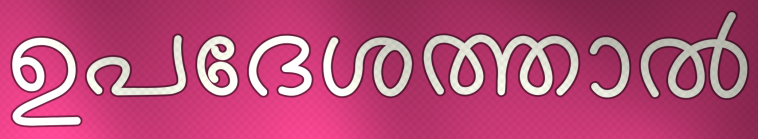
ഉപദേശത്താൽ